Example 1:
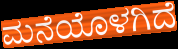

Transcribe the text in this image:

ಮನೆಯೊಳಗಿದೆ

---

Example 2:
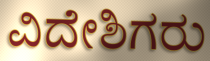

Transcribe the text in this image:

ವಿದೇಶಿಗರು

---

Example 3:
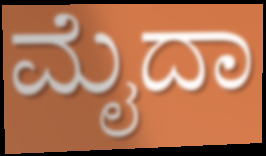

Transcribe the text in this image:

ಮೈದಾ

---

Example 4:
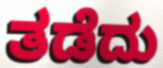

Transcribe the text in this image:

ತಡೆದು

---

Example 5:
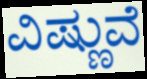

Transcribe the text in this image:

ವಿಷ್ಣುವೆ